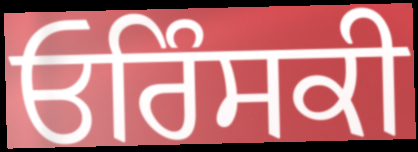
ਓਰਿੰਸਕੀ